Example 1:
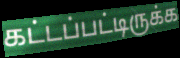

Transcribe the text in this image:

கட்டப்பட்டிருக்க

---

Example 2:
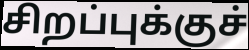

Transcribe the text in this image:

சிறப்புக்குச்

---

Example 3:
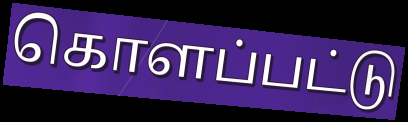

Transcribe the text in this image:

கொளப்பட்டு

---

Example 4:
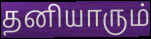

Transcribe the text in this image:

தனியாரும்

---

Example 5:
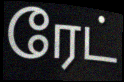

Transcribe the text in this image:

ரேட்